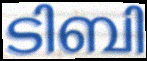
ടിബി